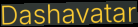
Dashavatar